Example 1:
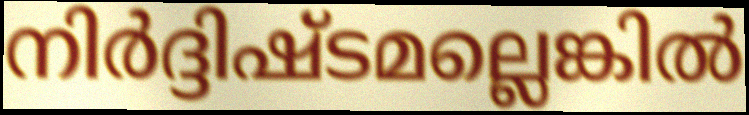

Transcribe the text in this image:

നിർദ്ദിഷ്ടമല്ലെങ്കിൽ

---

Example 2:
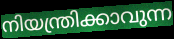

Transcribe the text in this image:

നിയന്ത്രിക്കാവുന്ന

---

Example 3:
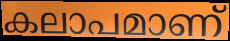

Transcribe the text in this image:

കലാപമാണ്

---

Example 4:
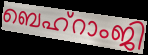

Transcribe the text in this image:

ബെഹ്റാംജി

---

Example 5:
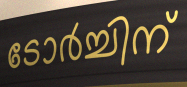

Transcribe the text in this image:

ടോർച്ചിന്